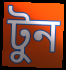
টুন